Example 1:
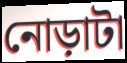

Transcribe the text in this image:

নোড়াটা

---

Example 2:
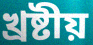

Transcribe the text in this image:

খ্রষ্টীয়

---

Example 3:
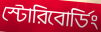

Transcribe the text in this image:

স্টোরিবোর্ডিং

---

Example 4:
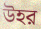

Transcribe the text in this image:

উহর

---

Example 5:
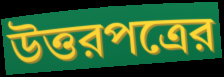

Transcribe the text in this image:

উত্তরপত্রের